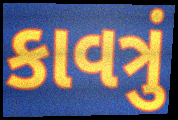
કાવત્રું